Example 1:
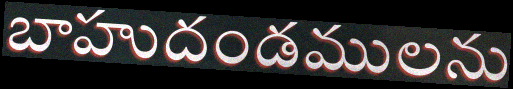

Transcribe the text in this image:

బాహుదండములను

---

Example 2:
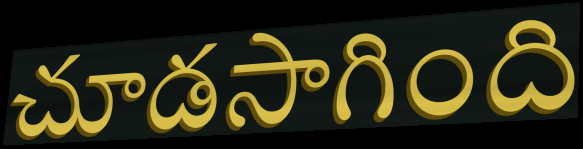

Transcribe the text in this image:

చూడసాగింది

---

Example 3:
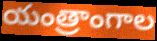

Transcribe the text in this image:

యంత్రాంగాల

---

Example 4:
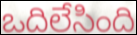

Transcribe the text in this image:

ఒదిలేసింది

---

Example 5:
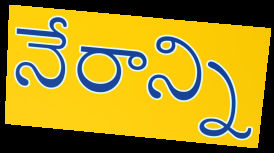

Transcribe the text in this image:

నేరాన్ని